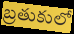
బ్రతుకులో